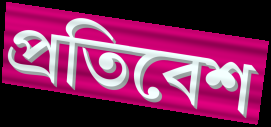
প্রতিবেশ